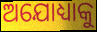
ଅଯୋଧ୍ୟାକୁ